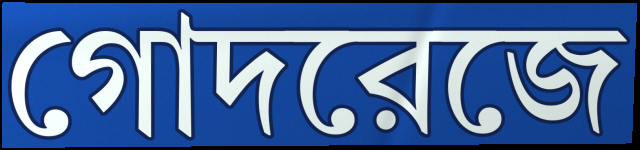
গোদরেজে